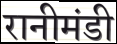
रानीमंडी